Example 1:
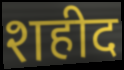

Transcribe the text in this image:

शहीद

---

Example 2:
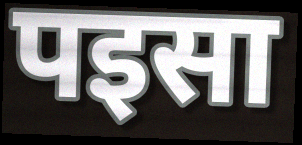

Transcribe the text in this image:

पइसा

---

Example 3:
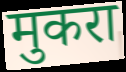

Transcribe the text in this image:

मुकरा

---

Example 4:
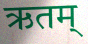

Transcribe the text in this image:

ऋतम्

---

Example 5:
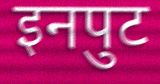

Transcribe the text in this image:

इनपुट